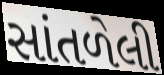
સાંતળેલી